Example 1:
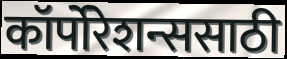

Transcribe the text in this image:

कॉर्पोरेशन्ससाठी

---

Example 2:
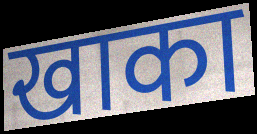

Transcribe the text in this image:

खाका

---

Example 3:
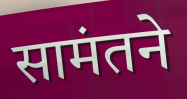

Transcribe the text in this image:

सामंतने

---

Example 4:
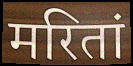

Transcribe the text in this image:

मरितां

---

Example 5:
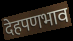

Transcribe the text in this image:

देहपणभाव